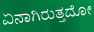
ಏನಾಗಿರುತ್ತದೋ